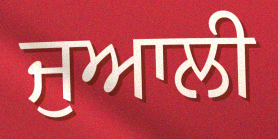
ਜੁਆਲੀ